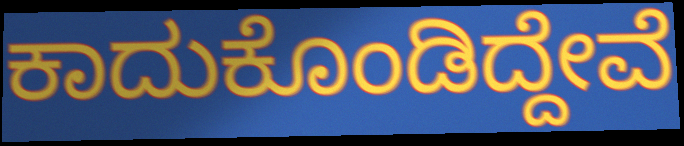
ಕಾದುಕೊಂಡಿದ್ದೇವೆ